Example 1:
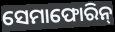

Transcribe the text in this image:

ସେମାଫୋରିନ୍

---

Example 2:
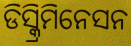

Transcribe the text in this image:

ଡିସ୍କ୍ରିମିନେସନ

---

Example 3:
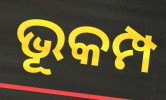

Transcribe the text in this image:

ଭୂକମ୍ପ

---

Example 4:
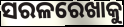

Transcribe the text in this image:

ସରଳରେଖାକୁ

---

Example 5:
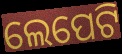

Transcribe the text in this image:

ଲେପେଟି